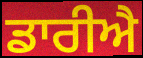
ਡਾਰੀਐ